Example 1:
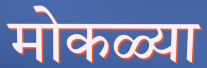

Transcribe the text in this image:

मोकळ्या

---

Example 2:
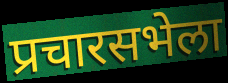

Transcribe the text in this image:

प्रचारसभेला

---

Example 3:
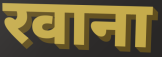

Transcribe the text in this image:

रवाना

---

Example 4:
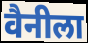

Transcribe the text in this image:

वैनीला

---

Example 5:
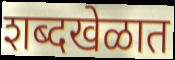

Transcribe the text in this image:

शब्दखेळात